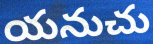
యనుచు